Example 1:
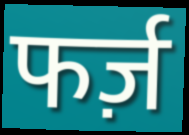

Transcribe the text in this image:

फर्ज़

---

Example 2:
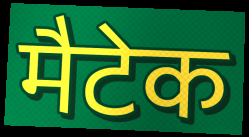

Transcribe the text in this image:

मैटेक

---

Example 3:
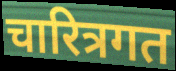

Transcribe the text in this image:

चारित्रगत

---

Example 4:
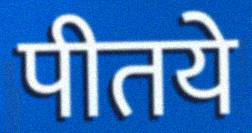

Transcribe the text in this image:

पीतये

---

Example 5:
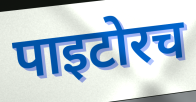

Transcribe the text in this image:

पाइटोरच